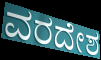
ವರದೇಶ